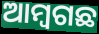
ଆମ୍ବଗଛ